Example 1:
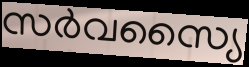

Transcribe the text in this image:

സർവസ്യൈ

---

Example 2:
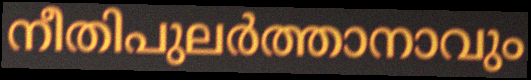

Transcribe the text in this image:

നീതിപുലർത്താനാവും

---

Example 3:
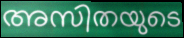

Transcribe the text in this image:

അസിതയുടെ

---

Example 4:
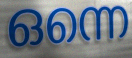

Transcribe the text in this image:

ഒന്നെ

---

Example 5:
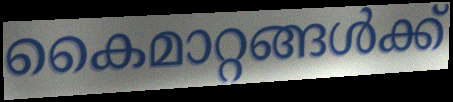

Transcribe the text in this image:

കൈമാറ്റങ്ങൾക്ക്